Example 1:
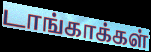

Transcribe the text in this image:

டாங்காக்கள்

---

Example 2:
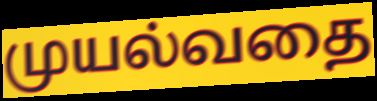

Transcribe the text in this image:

முயல்வதை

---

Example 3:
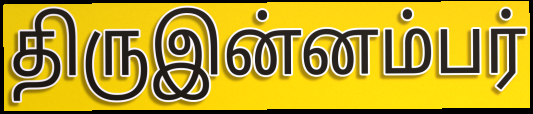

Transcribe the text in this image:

திருஇன்னம்பர்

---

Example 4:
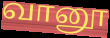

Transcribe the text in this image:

வானூ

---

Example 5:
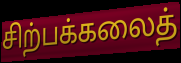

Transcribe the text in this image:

சிற்பக்கலைத்